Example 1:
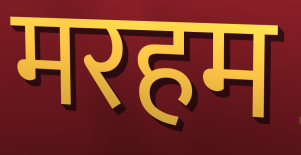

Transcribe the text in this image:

मरहम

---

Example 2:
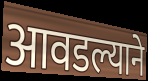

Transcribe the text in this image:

आवडल्याने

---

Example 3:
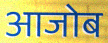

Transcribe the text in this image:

आजोब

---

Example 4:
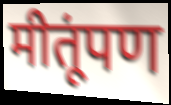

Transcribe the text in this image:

मीतूंपण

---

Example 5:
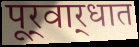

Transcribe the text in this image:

पूर्वार्धात